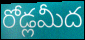
రోడ్లమీద